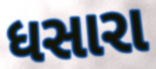
ધસારા